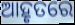
ଆହୃତରେ